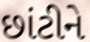
છાંટીને